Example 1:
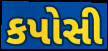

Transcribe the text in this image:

કપોસી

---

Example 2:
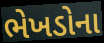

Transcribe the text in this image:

ભેખડોના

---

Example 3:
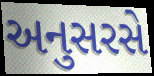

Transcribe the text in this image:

અનુસરસે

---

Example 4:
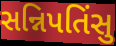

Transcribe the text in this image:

સન્નિપતિંસુ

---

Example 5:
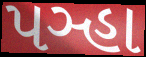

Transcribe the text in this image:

પઞ્હા